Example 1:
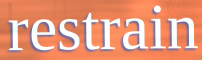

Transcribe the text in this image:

restrain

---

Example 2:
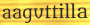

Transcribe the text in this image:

aaguttilla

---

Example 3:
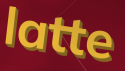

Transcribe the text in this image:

latte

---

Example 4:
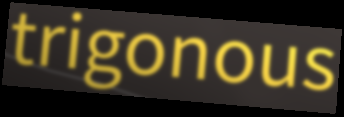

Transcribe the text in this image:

trigonous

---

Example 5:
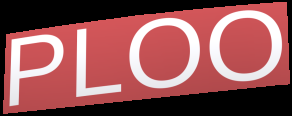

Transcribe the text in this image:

PLOO